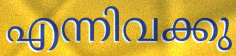
എന്നിവക്കു